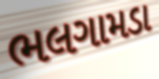
ભલગામડા